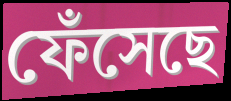
ফেঁসেছে